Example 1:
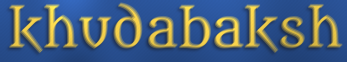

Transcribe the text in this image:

khudabaksh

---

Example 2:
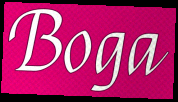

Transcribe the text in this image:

Boga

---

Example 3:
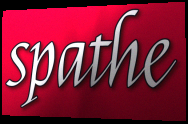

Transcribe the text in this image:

spathe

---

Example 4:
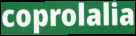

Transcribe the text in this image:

coprolalia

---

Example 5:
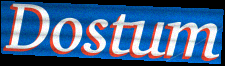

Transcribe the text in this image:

Dostum